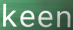
keen